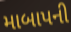
માબાપની